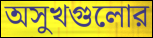
অসুখগুলোর